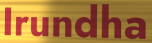
Irundha